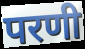
परणी